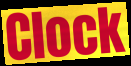
Clock